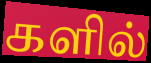
களில்